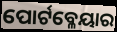
ପୋର୍ଟବ୍ଳେୟାର